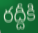
రద్దీకి